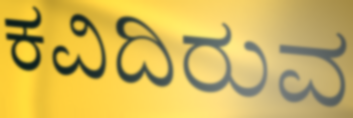
ಕವಿದಿರುವ